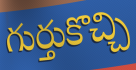
గుర్తుకొచ్చి